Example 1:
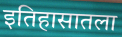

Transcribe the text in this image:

इतिहासातला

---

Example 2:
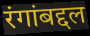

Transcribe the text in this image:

रंगांबद्दल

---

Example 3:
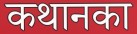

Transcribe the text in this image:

कथानका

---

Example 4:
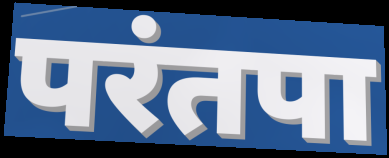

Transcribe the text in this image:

परंतपा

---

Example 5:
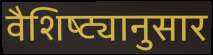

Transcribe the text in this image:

वैशिष्ट्यानुसार